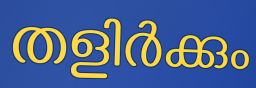
തളിർക്കും